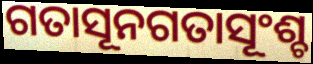
ଗତାସୂନଗତାସୂଂଶ୍ଚ